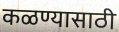
कळण्यासाठी